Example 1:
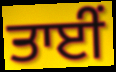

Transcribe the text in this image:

ਤਾਈਂ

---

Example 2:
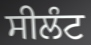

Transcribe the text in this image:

ਸੀਲੰਟ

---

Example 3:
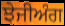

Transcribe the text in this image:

ਝੇਜੀਅੰਗ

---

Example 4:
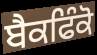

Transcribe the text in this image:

ਬੈਕਫਿੰਕੋ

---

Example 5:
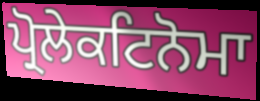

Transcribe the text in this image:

ਪ੍ਰੋਲੇਕਟਿਨੋਮਾ